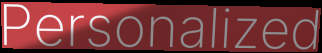
Personalized